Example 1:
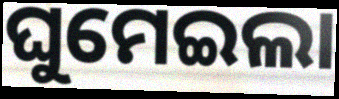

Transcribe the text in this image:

ଘୁମେଇଲା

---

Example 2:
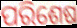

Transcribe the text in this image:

ପରିଶେଷ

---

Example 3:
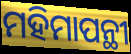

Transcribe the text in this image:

ମହିମାପନ୍ଥୀ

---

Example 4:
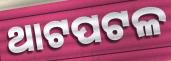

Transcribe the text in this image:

ଥାଟପଟଳ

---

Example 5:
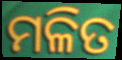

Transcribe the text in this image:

ମଳିତ